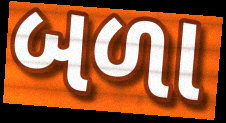
બળા